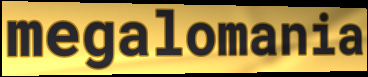
megalomania